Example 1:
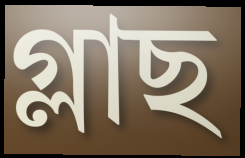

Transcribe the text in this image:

গ্লাছ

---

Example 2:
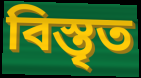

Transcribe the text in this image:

বিস্তৃত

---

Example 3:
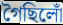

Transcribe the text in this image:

গৈছিলোঁ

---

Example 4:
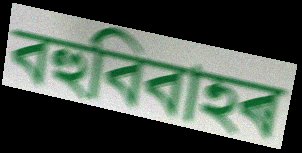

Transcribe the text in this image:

বহুবিবাহৰ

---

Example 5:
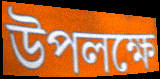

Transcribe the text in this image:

উপলক্ষে